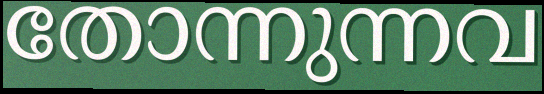
തോന്നുന്നവ